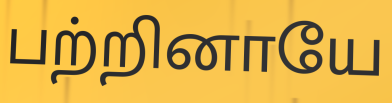
பற்றினாயே